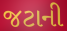
જટાની